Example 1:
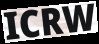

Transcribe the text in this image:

ICRW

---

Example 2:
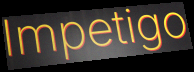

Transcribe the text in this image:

Impetigo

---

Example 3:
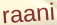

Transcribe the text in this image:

raani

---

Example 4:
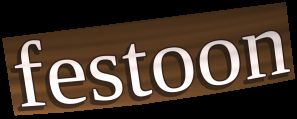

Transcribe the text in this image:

festoon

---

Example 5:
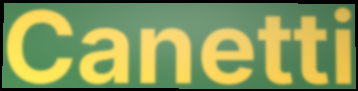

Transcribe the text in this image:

Canetti